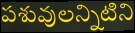
పశువులన్నిటిని